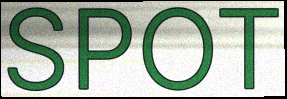
SPOT